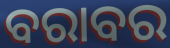
ବରାବର